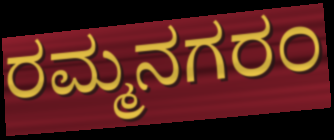
ರಮ್ಮನಗರಂ